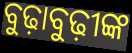
ବୁଢ଼ାବୁଢ଼ୀଙ୍କ